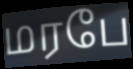
மரபே